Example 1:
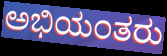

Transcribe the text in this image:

ಅಭಿಯಂತರು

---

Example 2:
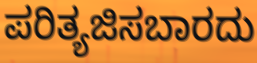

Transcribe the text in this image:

ಪರಿತ್ಯಜಿಸಬಾರದು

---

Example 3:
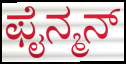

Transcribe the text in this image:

ಫೈನ್ಮನ್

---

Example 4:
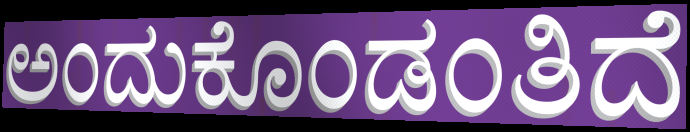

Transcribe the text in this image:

ಅಂದುಕೊಂಡಂತಿದೆ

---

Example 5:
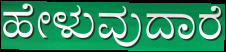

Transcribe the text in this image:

ಹೇಳುವುದಾರೆ